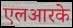
एलआरके